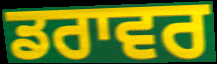
ਡਰਾਵਰ